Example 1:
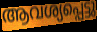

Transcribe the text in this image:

ആവശ്യപ്പെട്ടു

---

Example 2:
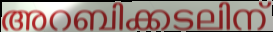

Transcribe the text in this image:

അറബിക്കടലിന്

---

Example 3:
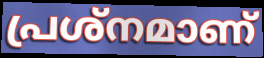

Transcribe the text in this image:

പ്രശ്നമാണ്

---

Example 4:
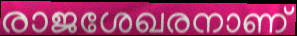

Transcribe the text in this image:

രാജശേഖരനാണ്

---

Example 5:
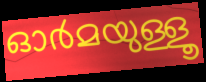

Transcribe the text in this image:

ഓർമയുള്ളൂ